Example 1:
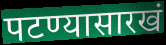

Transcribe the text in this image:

पटण्यासारखं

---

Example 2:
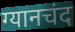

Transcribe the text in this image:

ग्यानचंद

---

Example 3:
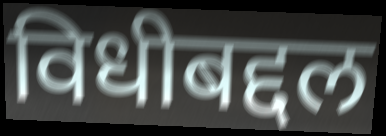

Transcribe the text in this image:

विधीबद्दल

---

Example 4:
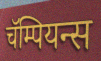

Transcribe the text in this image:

चॅम्पियन्स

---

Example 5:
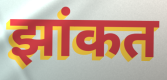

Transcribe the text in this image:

झांकत